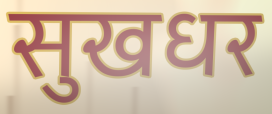
सुखधर